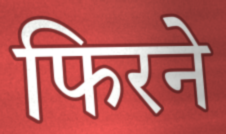
फिरने